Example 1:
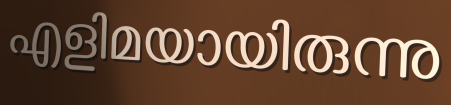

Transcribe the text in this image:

എളിമയായിരുന്നു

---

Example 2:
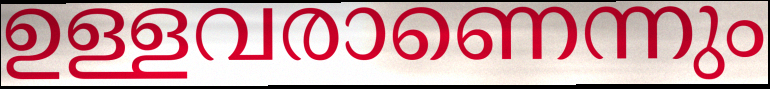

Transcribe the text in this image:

ഉള്ളവരാണെന്നും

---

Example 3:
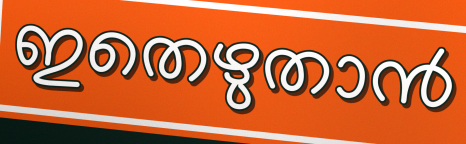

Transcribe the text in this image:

ഇതെഴുതാൻ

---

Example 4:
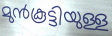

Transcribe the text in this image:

മുൻകൂട്ടിയുള്ള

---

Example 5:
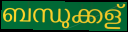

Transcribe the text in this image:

ബന്ധുക്കള്